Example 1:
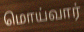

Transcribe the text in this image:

மொய்வார்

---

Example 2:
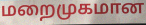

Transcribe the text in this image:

மறைமுகமான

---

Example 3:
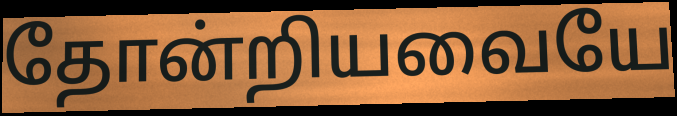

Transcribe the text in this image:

தோன்றியவையே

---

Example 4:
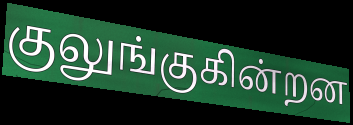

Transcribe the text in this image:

குலுங்குகின்றன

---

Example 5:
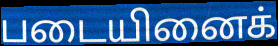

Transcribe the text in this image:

படையினைக்